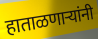
हाताळणाऱ्यांनी